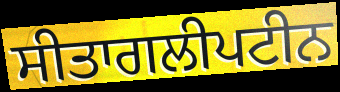
ਸੀਤਾਗਲੀਪਟੀਨ